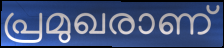
പ്രമുഖരാണ്